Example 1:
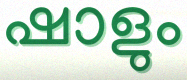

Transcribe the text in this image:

ഷാളും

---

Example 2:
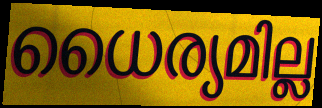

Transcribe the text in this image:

ധൈര്യമില്ല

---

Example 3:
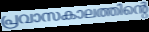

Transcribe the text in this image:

പ്രവാസകാലത്തിന്റെ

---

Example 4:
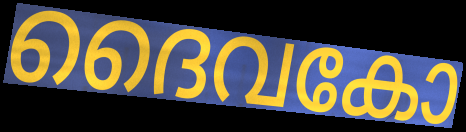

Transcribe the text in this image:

ദൈവകോ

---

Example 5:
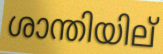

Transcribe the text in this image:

ശാന്തിയില്